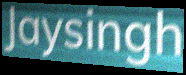
Jaysingh